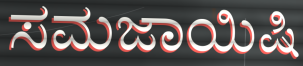
ಸಮಜಾಯಿಷಿ